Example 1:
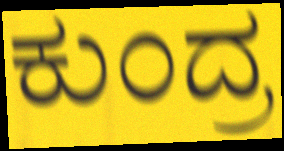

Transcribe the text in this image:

ಕುಂದ್ರ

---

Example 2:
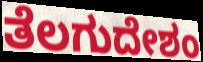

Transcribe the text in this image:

ತೆಲಗುದೇಶಂ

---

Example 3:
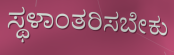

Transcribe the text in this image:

ಸ್ಥಳಾಂತರಿಸಬೇಕು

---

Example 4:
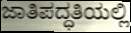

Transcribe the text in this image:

ಜಾತಿಪದ್ಧತಿಯಲ್ಲಿ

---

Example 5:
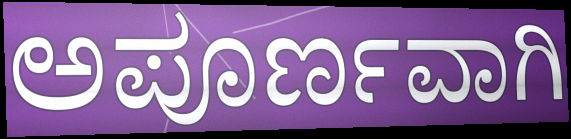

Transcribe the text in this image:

ಅಪೂರ್ಣವಾಗಿ